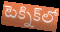
టెక్నిక్‌లో